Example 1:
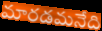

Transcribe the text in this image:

మారడమనేది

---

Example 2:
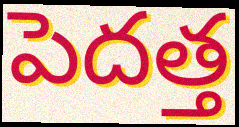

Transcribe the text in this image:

పెదత్త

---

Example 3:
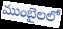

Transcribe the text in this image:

ముంబైలలో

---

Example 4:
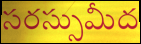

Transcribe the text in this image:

సరస్సుమీద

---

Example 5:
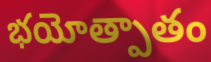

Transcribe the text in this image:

భయోత్పాతం